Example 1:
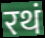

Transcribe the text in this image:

रथं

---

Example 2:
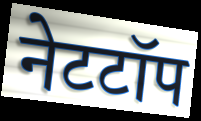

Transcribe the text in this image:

नेटटॉप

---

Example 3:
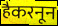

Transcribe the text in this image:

हैकरनून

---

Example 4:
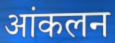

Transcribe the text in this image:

आंकलन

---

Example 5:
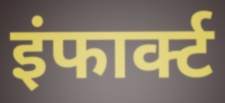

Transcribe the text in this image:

इंफार्क्ट